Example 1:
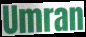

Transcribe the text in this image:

Umran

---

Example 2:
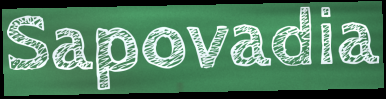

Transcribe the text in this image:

Sapovadia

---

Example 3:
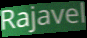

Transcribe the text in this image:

Rajavel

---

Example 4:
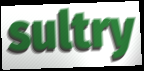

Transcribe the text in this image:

sultry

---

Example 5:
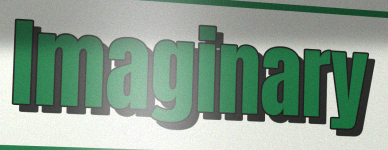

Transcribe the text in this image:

Imaginary